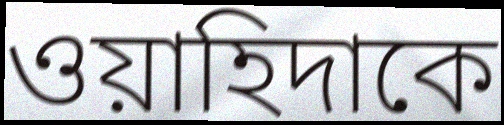
ওয়াহিদাকে